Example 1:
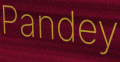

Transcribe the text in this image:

Pandey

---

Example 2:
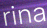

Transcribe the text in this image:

rina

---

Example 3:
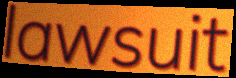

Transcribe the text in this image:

lawsuit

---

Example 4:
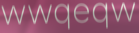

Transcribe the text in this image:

wwqeqw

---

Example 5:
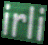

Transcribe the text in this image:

irli